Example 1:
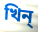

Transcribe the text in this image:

খিন্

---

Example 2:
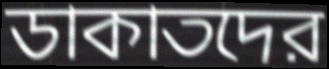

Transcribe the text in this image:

ডাকাতদের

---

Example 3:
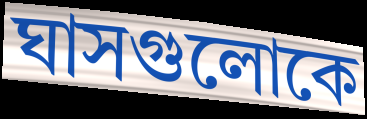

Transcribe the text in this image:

ঘাসগুলোকে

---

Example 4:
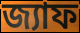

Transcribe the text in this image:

জ্যাফ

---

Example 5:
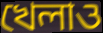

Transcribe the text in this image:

খেলাও